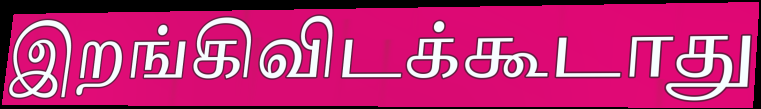
இறங்கிவிடக்கூடாது